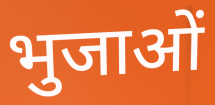
भुजाओं